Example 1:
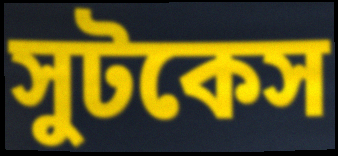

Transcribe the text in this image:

সুটকেস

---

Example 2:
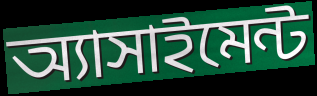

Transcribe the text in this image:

অ্যাসাইমেন্ট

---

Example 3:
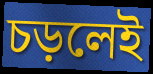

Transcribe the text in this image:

চড়লেই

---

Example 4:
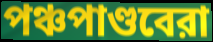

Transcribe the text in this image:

পঞ্চপাণ্ডবেরা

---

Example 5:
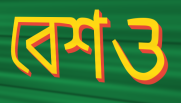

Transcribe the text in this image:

বেশও